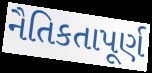
નૈતિકતાપૂર્ણ